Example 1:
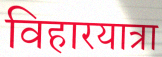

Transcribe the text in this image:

विहारयात्रा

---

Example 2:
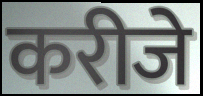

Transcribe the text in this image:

करीजे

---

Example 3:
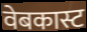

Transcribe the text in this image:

वेबकास्ट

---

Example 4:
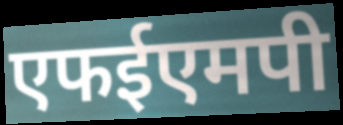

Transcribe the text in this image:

एफईएमपी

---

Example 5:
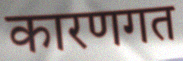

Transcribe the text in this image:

कारणगत